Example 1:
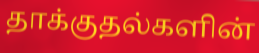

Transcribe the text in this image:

தாக்குதல்களின்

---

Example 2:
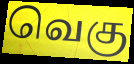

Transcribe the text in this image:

வெகு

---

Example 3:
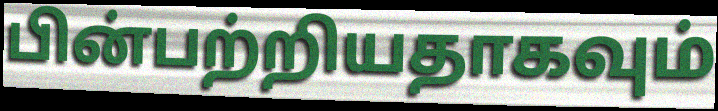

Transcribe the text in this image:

பின்பற்றியதாகவும்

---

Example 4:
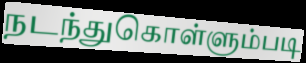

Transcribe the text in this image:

நடந்துகொள்ளும்படி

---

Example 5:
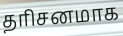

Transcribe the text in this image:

தரிசனமாக